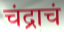
चंद्राचं